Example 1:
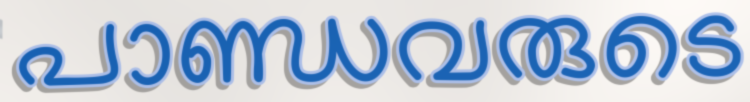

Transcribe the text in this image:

പാണ്ഡവരുടെ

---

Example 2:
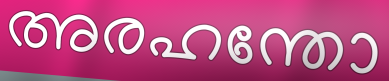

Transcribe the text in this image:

അരഹന്തോ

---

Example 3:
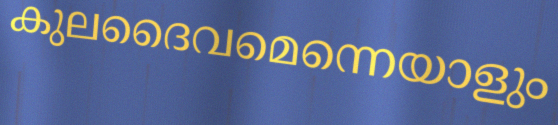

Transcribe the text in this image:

കുലദൈവമെന്നെയാളും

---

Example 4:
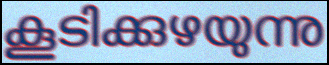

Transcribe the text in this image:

കൂടിക്കുഴയുന്നു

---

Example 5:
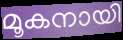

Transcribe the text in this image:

മൂകനായി